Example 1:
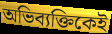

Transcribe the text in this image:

অভিব্যক্তিকেই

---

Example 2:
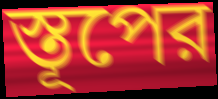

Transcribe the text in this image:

স্তূপের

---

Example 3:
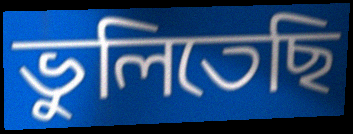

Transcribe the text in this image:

ভুলিতেছি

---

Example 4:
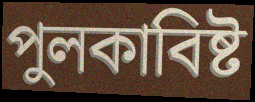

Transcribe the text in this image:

পুলকাবিষ্ট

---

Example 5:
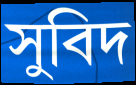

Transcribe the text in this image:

সুবিদ